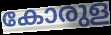
കോരുള